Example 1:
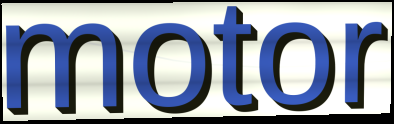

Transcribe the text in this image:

motor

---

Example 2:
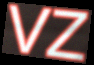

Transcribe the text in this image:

VZ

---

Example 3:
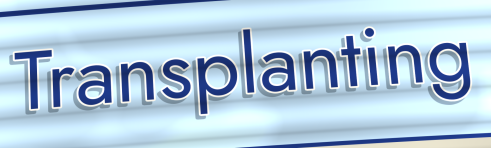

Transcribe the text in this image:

Transplanting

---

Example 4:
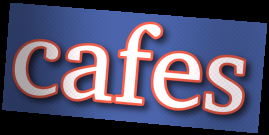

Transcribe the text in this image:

cafes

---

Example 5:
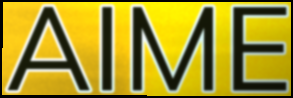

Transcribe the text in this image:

AIME